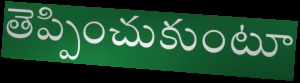
తెప్పించుకుంటూ